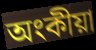
অংকীয়া